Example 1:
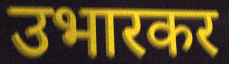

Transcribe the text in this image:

उभारकर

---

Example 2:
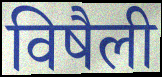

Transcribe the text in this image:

विषैली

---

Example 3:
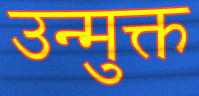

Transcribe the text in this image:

उन्मुक्त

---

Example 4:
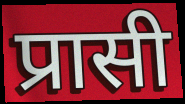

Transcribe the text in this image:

प्रासी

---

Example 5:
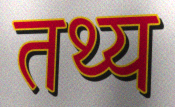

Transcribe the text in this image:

तथ्य